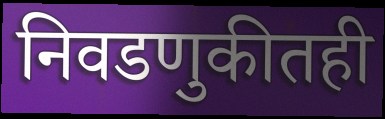
निवडणुकीतही